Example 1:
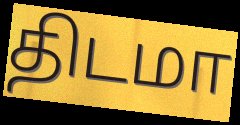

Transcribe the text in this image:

திடமா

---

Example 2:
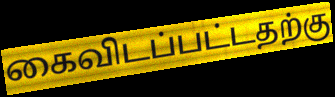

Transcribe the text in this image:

கைவிடப்பட்டதற்கு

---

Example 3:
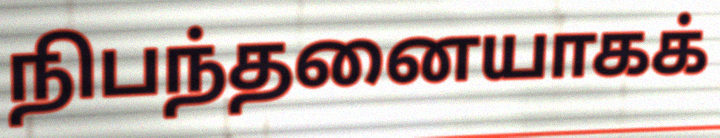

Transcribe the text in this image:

நிபந்தனையாகக்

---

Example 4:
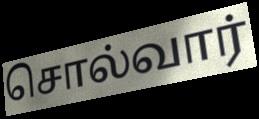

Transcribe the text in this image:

சொல்வார்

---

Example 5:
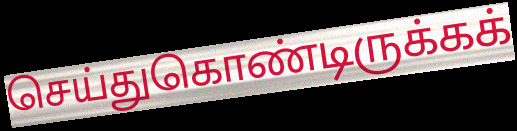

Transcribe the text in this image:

செய்துகொண்டிருக்கக்